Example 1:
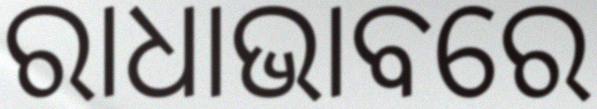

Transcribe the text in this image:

ରାଧାଭାବରେ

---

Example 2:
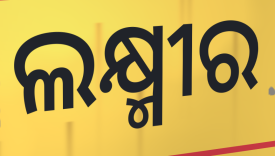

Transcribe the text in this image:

ଲକ୍ଷ୍ମୀର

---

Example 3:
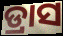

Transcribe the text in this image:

ଡ୍ରାସ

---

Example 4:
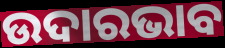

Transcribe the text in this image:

ଉଦାରଭାବ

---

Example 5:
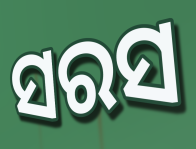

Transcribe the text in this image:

ସରସ